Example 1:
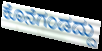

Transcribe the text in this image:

ಕೊನೆಗಂಡದ್ದು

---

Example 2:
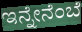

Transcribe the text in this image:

ಇನ್ನೇನೆಂಬೆ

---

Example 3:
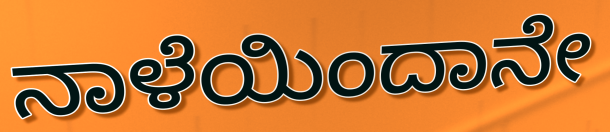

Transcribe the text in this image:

ನಾಳೆಯಿಂದಾನೇ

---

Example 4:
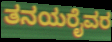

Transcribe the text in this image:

ತನಯರೈವರ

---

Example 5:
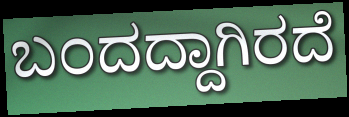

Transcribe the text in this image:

ಬಂದದ್ದಾಗಿರದೆ